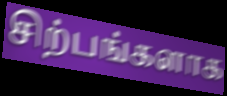
சிற்பங்களாக